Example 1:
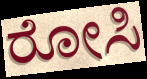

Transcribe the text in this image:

ರೋಸಿ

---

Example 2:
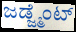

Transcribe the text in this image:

ಜಡ್ಜ್ಮೆಂಟ್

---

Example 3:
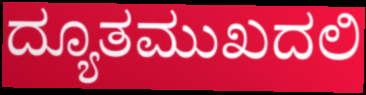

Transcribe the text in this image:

ದ್ಯೂತಮುಖದಲಿ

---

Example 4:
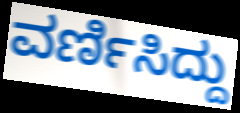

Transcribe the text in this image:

ವರ್ಣಿಸಿದ್ದು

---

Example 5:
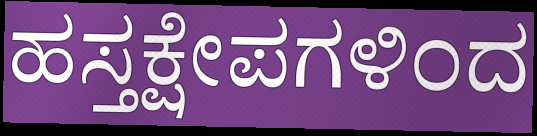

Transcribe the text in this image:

ಹಸ್ತಕ್ಷೇಪಗಳಿಂದ